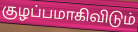
குழப்பமாகிவிடும்